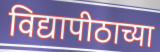
विद्यापीठाच्या